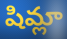
షిమ్లా